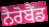
ਨੈਰੋਬੈਂਡ